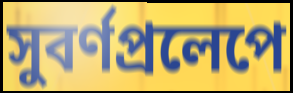
সুবর্ণপ্রলেপে